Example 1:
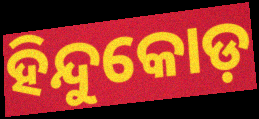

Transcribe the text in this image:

ହିନ୍ଦୁକୋଡ଼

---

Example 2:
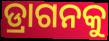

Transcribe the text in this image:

ଡ୍ରାଗନକୁ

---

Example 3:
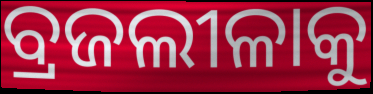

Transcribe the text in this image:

ବ୍ରଜଲୀଳାକୁ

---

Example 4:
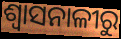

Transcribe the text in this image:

ଶ୍ୱାସନାଳୀରୁ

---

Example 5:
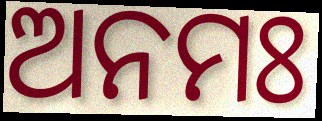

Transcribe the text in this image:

ଅନମଃ